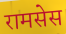
रामसेस